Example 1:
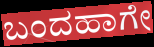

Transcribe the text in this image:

ಬಂದಹಾಗೇ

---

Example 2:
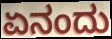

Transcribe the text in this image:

ಏನಂದು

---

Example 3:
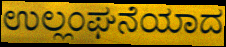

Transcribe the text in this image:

ಉಲ್ಲಂಘನೆಯಾದ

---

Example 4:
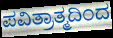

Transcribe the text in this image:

ಪವಿತ್ರಾತ್ಮದಿಂದ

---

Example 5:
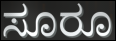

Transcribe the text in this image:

ಸೂರೂ